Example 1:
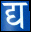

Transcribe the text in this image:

द्य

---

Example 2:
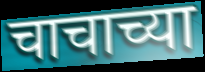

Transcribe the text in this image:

चाचाच्या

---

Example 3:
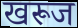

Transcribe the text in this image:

खरूज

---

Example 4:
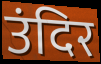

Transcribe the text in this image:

उंदिर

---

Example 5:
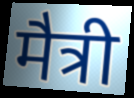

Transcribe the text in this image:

मैत्री